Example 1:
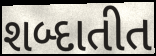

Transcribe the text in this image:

શબ્દાતીત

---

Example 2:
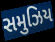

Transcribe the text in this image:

સમુઝિય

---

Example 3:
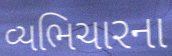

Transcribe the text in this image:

વ્યભિચારના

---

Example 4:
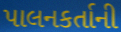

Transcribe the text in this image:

પાલનકર્તાની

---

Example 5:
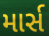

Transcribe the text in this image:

માર્સ